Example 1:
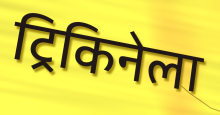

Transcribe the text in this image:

ट्रिकिनेला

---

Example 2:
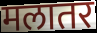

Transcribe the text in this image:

मलातर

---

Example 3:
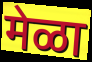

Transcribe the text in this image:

मेळा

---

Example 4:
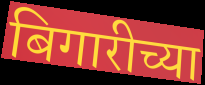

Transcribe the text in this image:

बिगारीच्या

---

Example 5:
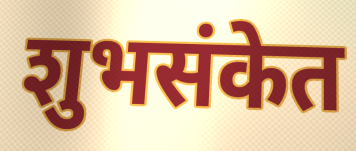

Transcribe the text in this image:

शुभसंकेत